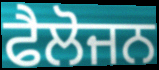
ਫੈਲੋਜਨ